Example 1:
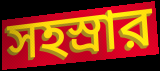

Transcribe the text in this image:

সহস্রার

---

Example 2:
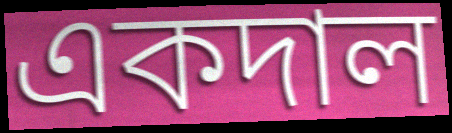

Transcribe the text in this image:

একদাল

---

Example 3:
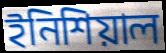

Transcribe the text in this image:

ইনিশিয়াল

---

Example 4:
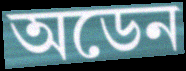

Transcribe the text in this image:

অডেন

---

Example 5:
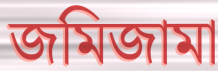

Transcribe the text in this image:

জমিজামা